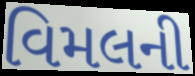
વિમલની